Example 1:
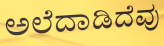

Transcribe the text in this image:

ಅಲೆದಾಡಿದೆವು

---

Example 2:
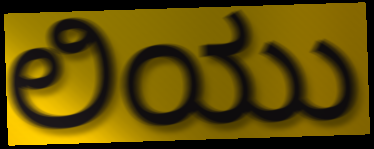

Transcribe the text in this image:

ಲಿಯು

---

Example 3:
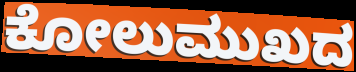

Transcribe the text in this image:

ಕೋಲುಮುಖದ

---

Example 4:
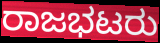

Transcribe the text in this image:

ರಾಜಭಟರು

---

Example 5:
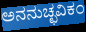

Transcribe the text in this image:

ಅನನುಚ್ಛವಿಕಂ